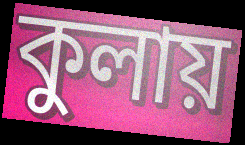
কুলায়